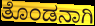
ತೊಂಡನಾಗಿ